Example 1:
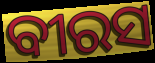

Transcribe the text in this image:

ବୀରସ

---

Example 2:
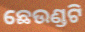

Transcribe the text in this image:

ଛେଉଣ୍ଡଟି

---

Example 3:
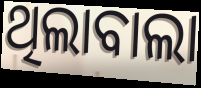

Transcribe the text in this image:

ଥିଲାବାଲା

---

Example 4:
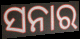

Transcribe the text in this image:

ସନାର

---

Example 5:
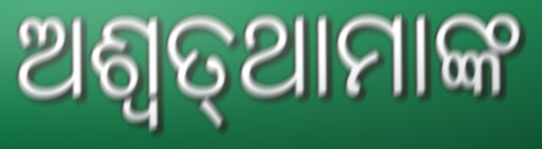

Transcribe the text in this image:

ଅଶ୍ୱତ୍‌ଥାମାଙ୍କ